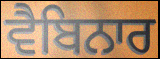
ਵੈਬਿਨਾਰ